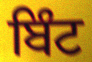
ਬਿੰਟ